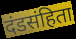
दंडसंहिता